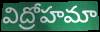
విద్రోహమా